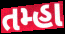
તમ્હા